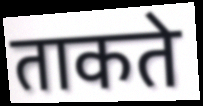
ताकते